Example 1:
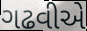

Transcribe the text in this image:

ગઢવીએ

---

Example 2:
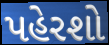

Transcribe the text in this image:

પહેરશો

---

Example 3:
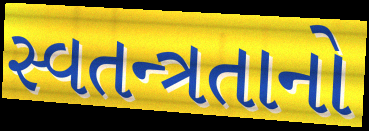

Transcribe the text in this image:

સ્વતન્ત્રતાનો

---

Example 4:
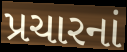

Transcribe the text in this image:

પ્રચારનાં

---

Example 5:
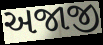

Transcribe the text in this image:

અજાજી